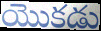
యొకడు